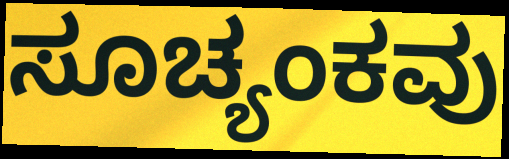
ಸೂಚ್ಯಂಕವು